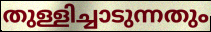
തുള്ളിച്ചാടുന്നതും